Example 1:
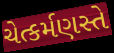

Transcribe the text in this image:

ચેત્કર્મણસ્તે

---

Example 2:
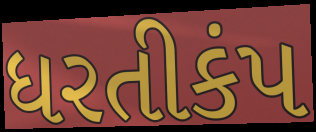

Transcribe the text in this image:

ધરતીકંપ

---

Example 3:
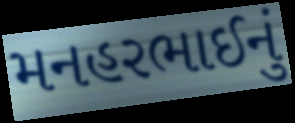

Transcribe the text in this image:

મનહરભાઈનું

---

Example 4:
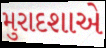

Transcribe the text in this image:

મુરાદશાએ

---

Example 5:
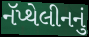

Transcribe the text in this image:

નૅપ્થેલીનનું